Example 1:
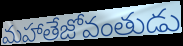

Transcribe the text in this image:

మహాతేజోవంతుడు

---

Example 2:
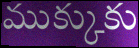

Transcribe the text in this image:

ముక్కుకు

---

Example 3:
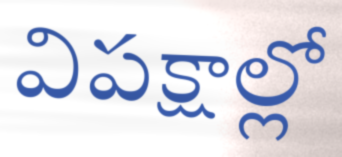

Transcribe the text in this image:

విపక్షాల్లో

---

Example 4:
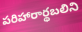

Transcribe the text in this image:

పరిహారార్థబలిని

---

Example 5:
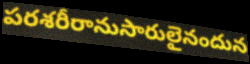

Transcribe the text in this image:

పరశరీరానుసారులైనందున